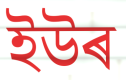
ইউৰ